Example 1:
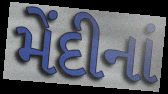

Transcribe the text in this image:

મેંદીનાં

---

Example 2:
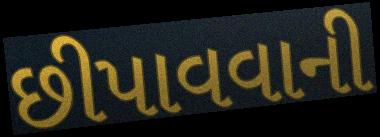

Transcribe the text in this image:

છીપાવવાની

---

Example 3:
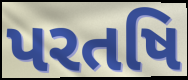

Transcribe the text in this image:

પરતષિ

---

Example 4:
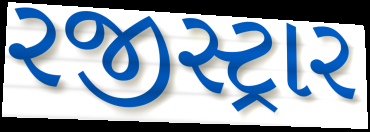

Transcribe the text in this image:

રજીસ્ટ્રાર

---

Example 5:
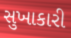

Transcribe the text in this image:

સુખાકારી